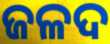
ଜଳଦ